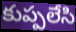
కుప్పలేసి